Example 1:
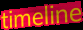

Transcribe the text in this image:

timeline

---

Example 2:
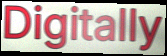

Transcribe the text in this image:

Digitally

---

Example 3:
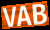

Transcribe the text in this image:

VAB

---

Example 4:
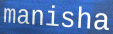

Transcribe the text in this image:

manisha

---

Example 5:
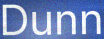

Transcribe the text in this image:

Dunn